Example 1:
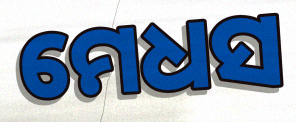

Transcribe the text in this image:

ମେଧସ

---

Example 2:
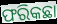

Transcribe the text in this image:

ଫରିକଛା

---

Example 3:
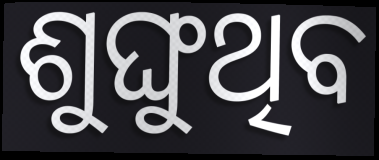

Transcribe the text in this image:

ଶୁଙ୍ଘୁଥିବ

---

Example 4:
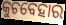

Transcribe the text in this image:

କୁଚବେହାର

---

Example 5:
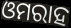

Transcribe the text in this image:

ଓମରାହ